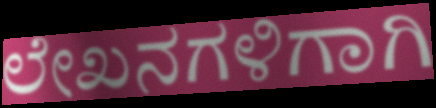
ಲೇಖನಗಳಿಗಾಗಿ